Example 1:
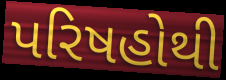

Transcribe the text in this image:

પરિષહોથી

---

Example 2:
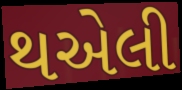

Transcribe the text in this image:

થએલી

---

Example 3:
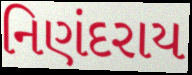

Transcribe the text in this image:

નિણંદરાય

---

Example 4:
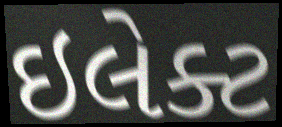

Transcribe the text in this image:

ઇલેક્ટ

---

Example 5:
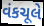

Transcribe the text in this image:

વંકચૂલે